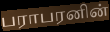
பராபரனின்